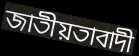
জাতীয়তাবাদী